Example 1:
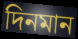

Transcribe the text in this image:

দিনমান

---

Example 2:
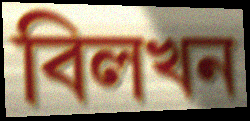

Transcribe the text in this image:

বিলখন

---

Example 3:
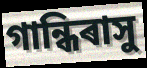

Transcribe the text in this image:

গান্ধিৰাসু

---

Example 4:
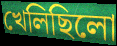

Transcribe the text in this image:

খেলিছিলো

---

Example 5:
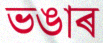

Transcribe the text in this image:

ভঙাৰ